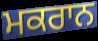
ਮਕਰਾਨ